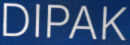
DIPAK